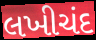
લખીચંદ